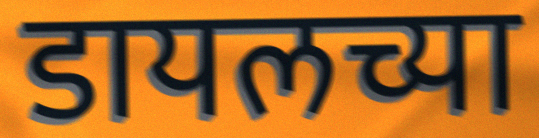
डायलच्या